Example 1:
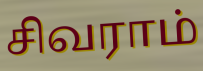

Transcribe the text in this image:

சிவராம்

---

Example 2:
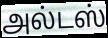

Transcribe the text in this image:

அல்டஸ்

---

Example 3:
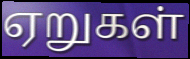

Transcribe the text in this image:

ஏறுகள்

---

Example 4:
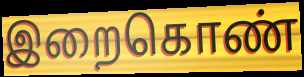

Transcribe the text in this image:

இறைகொண்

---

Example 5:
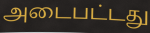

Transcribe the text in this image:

அடைபட்டது